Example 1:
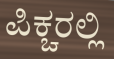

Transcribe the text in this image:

ಪಿಕ್ಚರಲ್ಲಿ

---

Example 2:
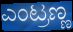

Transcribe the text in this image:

ಎಂಟ್ರಣ್ಣ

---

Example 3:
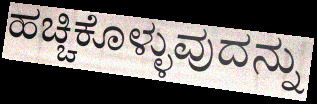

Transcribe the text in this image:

ಹಚ್ಚಿಕೊಳ್ಳುವುದನ್ನು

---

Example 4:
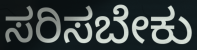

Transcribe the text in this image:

ಸರಿಸಬೇಕು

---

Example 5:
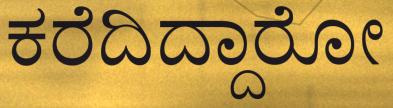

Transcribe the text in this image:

ಕರೆದಿದ್ದಾರೋ